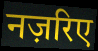
नज़रिए